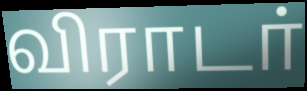
விராடர்